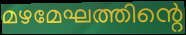
മഴമേഘത്തിന്റെ